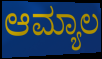
ಆಮ್ಯಾಲ